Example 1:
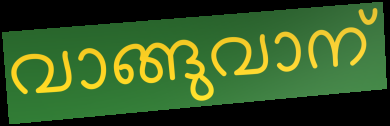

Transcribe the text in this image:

വാങ്ങുവാന്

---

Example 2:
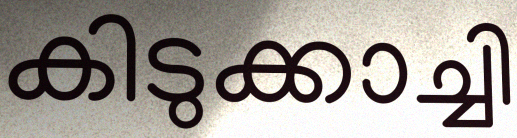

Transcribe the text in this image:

കിടുക്കാച്ചി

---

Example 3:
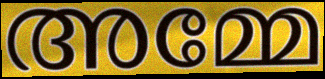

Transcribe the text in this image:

അമ്മേ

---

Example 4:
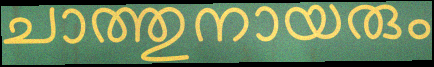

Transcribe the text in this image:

ചാത്തുനായരും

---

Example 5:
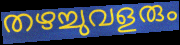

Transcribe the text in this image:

തഴച്ചുവളരും